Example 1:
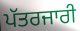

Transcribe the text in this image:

ਪੱਤਰਜਾਰੀ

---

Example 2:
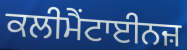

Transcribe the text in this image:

ਕਲੀਮੈਂਟਾਈਨਜ਼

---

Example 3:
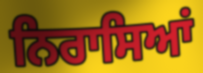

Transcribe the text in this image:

ਨਿਰਾਸਿਆਂ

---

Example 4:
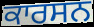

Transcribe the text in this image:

ਕਾਰਸਨ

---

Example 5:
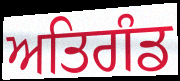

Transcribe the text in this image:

ਅਤਿਗੰਡ